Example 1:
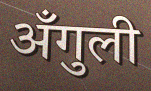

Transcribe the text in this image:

अँगुली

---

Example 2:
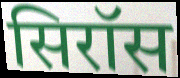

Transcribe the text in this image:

सिरॉस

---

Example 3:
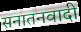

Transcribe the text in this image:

सनातनवादी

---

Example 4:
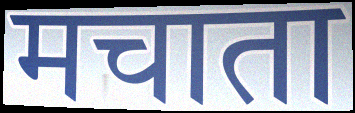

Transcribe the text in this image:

मचाता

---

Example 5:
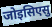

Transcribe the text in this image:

जोइसिएसु